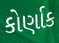
કોર્ણાક